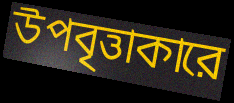
উপবৃত্তাকারে